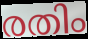
രതിം